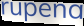
rupena